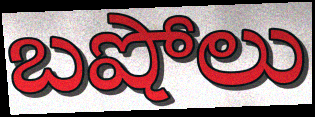
బషోలు